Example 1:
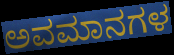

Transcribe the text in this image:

ಅವಮಾನಗಳ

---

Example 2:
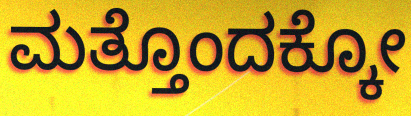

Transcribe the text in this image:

ಮತ್ತೊಂದಕ್ಕೋ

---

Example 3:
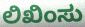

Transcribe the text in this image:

ಲಿಖಿಂಸು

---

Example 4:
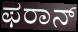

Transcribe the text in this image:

ಫರಾನ್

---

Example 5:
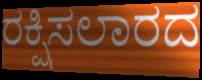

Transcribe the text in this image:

ರಕ್ಷಿಸಲಾರದ